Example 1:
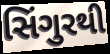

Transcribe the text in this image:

સિંગુરથી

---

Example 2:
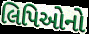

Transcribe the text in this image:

લિપિઓનો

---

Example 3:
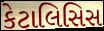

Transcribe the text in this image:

કેટાલિસિસ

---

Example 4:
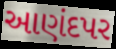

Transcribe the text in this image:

આણંદપર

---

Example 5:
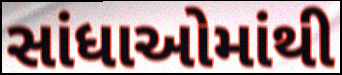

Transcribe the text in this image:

સાંધાઓમાંથી